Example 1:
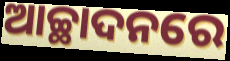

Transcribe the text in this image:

ଆଚ୍ଛାଦନରେ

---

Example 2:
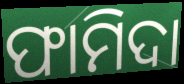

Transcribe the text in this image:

ଫାମିଦା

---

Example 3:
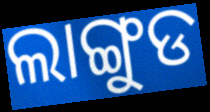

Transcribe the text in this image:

ଲାଙ୍ଗୁଡ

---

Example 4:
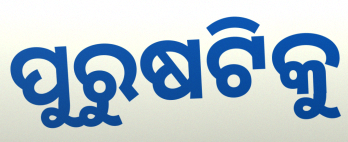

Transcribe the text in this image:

ପୁରୁଷଟିକୁ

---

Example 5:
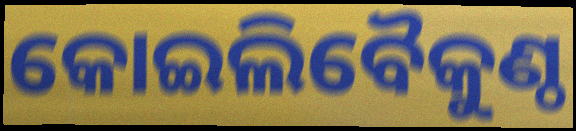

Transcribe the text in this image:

କୋଇଲିବୈକୁଣ୍ଠ